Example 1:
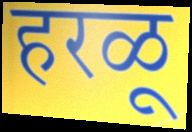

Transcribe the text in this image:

हरळू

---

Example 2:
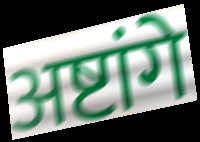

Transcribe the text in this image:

अष्टांगे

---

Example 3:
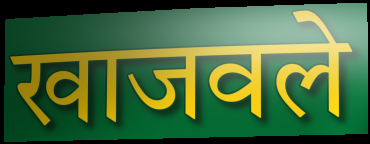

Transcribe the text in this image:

खाजवले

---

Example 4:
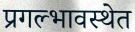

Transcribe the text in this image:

प्रगल्भावस्थेत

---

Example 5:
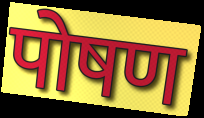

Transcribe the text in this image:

पोषण